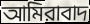
আমিরাবাদ